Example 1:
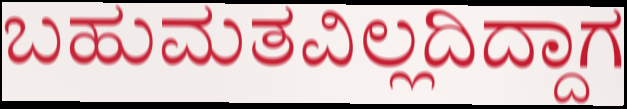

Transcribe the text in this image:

ಬಹುಮತವಿಲ್ಲದಿದ್ದಾಗ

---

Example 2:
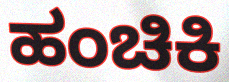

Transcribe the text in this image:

ಹಂಚಿಕಿ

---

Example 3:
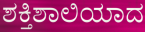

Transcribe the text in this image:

ಶಕ್ತಿಶಾಲಿಯಾದ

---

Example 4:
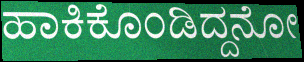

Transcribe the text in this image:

ಹಾಕಿಕೊಂಡಿದ್ದನೋ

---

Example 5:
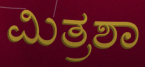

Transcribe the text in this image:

ಮಿತ್ರಶಾ